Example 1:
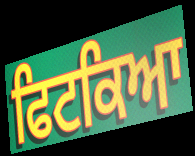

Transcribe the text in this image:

ਫਿਟਕਿਆ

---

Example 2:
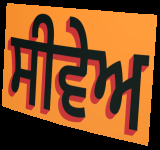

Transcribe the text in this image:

ਸੀਵੇਅ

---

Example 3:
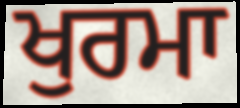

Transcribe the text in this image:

ਖੁਰਮਾ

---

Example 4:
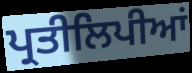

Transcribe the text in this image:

ਪ੍ਰਤੀਲਿਪੀਆਂ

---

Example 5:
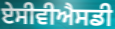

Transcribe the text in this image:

ਏਸੀਵੀਐਸਡੀ